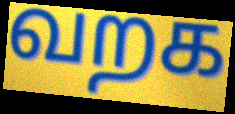
வறக